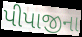
પીપાજીના